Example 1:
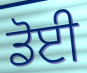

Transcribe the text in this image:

ਡੋਈ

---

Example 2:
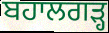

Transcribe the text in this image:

ਬਹਾਲਗੜ੍ਹ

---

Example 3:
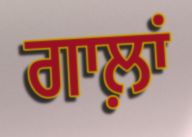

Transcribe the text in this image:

ਗਾਲ਼ਾਂ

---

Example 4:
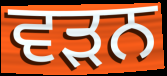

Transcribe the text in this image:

ਵੜਨ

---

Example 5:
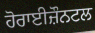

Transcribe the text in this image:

ਹੋਰਾਈਜ਼ੌਨਟਲ